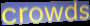
crowds